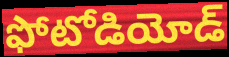
ఫోటోడియోడ్